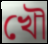
খৌ